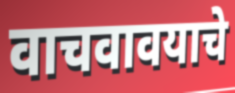
वाचवावयाचे